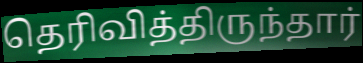
தெரிவித்திருந்தார்